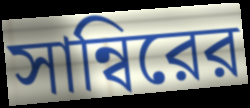
সান্বিরের